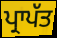
ਪ੍ਰਾਪੱਤ